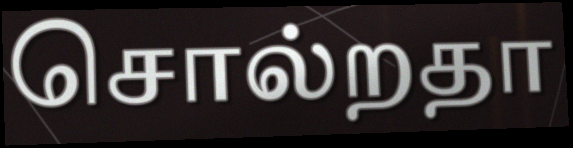
சொல்றதா